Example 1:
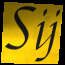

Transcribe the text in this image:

Sij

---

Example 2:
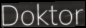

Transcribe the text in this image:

Doktor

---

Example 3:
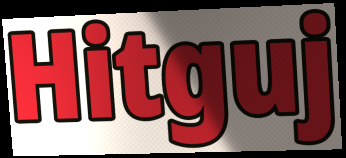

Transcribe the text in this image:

Hitguj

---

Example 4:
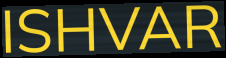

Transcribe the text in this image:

ISHVAR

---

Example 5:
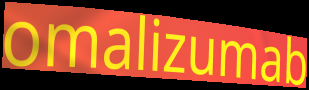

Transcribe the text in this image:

omalizumab